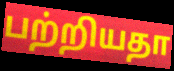
பற்றியதா